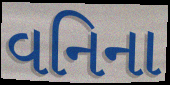
વનિના